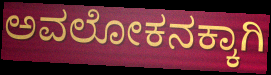
ಅವಲೋಕನಕ್ಕಾಗಿ